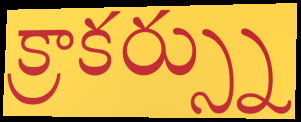
క్రాకర్స్ను